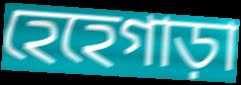
হেহেগাড়া